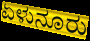
ಏಳುನೂರು